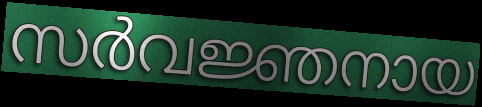
സർവജ്ഞനായ